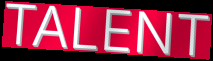
TALENT